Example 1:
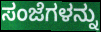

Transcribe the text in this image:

ಸಂಜೆಗಳನ್ನು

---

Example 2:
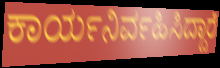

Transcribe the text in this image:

ಕಾರ್ಯನಿರ್ವಹಿಸಿದ್ದಾರೆ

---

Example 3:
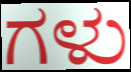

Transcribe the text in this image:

ಗಳು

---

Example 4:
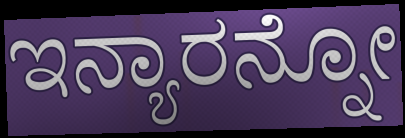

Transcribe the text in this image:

ಇನ್ಯಾರನ್ನೋ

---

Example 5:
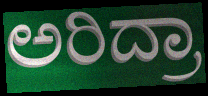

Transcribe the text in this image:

ಅರಿದ್ರಾ